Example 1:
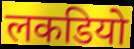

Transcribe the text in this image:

लकडियो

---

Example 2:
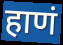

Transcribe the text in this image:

हाणं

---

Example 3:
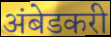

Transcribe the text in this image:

अंबेडकरी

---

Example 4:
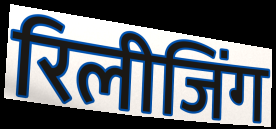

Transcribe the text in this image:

रिलीजिंग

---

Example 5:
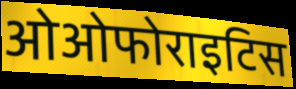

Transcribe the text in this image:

ओओफोराइटिस